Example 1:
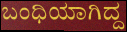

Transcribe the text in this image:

ಬಂಧಿಯಾಗಿದ್ದ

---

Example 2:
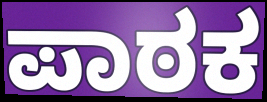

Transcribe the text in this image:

ಪಾಠಕ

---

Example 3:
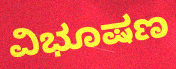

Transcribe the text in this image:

ವಿಭೂಷಣ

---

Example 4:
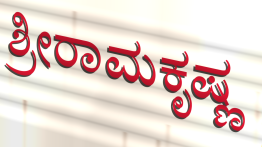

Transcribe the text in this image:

ಶ್ರೀರಾಮಕೃಷ್ಣ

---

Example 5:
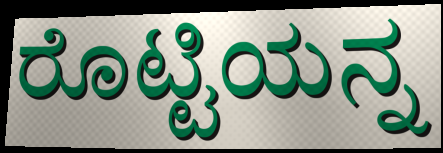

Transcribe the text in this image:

ರೊಟ್ಟಿಯನ್ನ